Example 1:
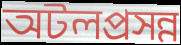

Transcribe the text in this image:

অটলপ্রসন্ন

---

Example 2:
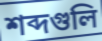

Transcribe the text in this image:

শব্দগুলি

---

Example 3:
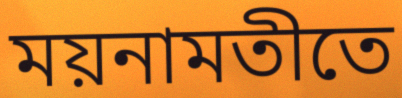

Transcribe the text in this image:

ময়নামতীতে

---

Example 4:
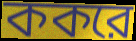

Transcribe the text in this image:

ককরে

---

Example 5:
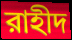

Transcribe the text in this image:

রাহীদ